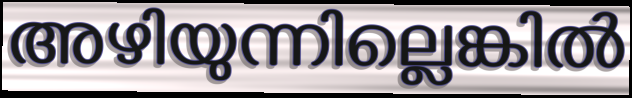
അഴിയുന്നില്ലെങ്കിൽ